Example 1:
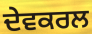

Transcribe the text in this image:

ਦੇਵਕਰਲ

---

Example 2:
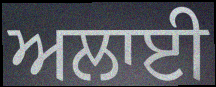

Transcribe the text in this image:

ਅਲਾਈ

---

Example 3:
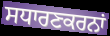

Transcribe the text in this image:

ਸਧਾਰਣਕਰਨਾਂ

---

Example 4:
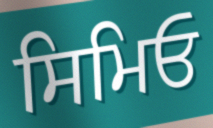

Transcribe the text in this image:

ਸਿਮਿਓ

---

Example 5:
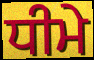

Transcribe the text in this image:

ਧੀਮੇ